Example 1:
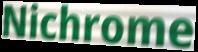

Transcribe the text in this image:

Nichrome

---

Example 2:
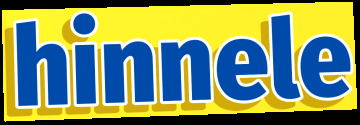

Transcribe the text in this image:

hinnele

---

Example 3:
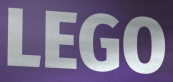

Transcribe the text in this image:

LEGO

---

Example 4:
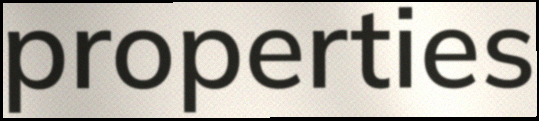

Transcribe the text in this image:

properties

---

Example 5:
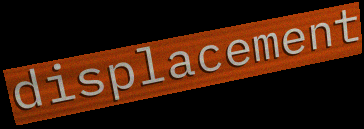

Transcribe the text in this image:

displacement